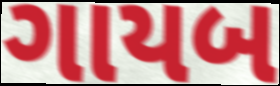
ગાયબ